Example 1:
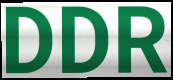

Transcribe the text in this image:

DDR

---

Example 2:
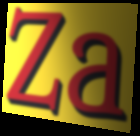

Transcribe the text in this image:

Za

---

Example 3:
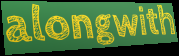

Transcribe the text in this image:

alongwith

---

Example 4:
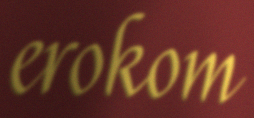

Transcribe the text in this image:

erokom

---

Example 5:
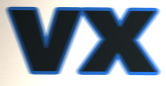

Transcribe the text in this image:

vx